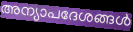
അന്യാപദേശങ്ങൾ